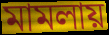
মামলায়